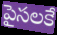
పైసలకే